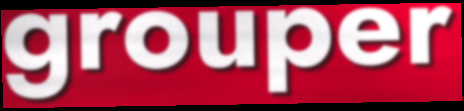
grouper